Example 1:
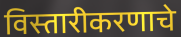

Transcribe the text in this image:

विस्तारीकरणाचे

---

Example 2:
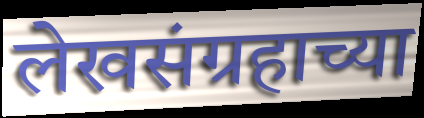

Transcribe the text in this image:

लेखसंग्रहाच्या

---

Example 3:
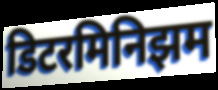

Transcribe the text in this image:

डिटरमिनिझम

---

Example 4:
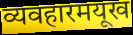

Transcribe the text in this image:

व्यवहारमयूख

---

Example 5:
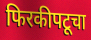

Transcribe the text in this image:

फिरकीपटूचा